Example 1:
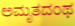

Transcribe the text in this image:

ಅಮೃತದಂಥ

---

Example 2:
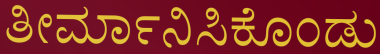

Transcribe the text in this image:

ತೀರ್ಮಾನಿಸಿಕೊಂಡು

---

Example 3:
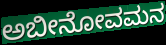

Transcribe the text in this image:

ಅಬೀನೋವಮನ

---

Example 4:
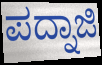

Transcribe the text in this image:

ಪದ್ನಾಜಿ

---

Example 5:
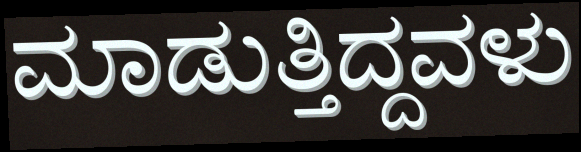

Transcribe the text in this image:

ಮಾಡುತ್ತಿದ್ದವಳು